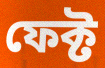
ফেক্ট